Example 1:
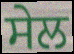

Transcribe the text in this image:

ਸੇਲ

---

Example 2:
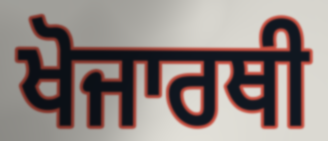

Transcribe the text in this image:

ਖੋਜਾਰਥੀ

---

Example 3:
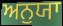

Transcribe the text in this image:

ਅਨੁਯਾ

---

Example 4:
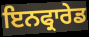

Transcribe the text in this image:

ਇਨਫ੍ਰਾਰੇਡ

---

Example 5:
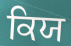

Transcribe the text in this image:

ਕਿਯ